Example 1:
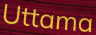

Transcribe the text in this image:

Uttama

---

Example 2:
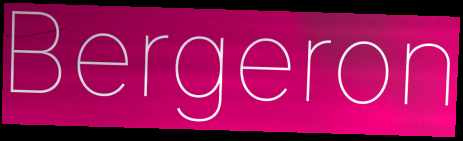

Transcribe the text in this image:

Bergeron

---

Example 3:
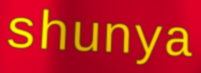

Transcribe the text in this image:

shunya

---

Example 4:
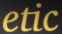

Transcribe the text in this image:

etic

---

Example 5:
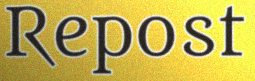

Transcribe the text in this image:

Repost